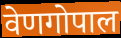
वेणगोपाल